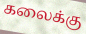
கலைக்கு